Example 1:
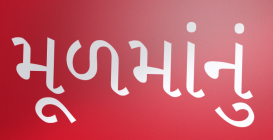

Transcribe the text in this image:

મૂળમાંનું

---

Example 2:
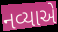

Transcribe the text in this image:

નવ્યાએ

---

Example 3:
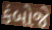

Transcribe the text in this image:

કંબોજે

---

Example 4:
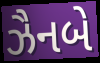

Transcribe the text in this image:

ઝૈનબે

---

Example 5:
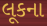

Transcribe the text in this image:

લૂકના